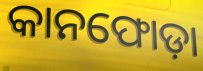
କାନଫୋଡ଼ା